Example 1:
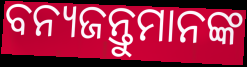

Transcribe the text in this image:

ବନ୍ୟଜନ୍ତୁମାନଙ୍କ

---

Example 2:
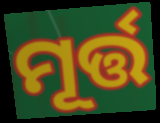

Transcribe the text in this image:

ମୂର୍ତ୍ତ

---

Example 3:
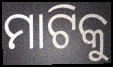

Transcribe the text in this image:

ମାଟିକୁ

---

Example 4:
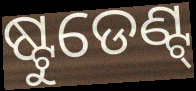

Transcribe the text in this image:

ଷ୍ଟୁଡେଣ୍ଟ୍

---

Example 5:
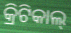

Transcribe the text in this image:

କ୍ରିଟିକାଲ୍